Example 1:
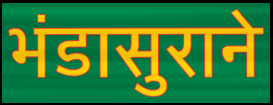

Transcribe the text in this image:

भंडासुराने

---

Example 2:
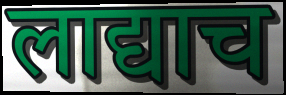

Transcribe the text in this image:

लाद्याच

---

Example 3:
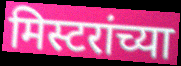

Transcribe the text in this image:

मिस्टरांच्या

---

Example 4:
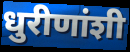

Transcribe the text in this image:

धुरीणांशी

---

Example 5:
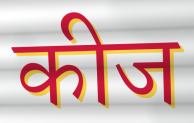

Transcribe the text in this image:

कीज